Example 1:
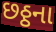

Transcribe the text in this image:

છઠ્ઠના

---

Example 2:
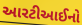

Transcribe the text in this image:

આરટીઆઈનો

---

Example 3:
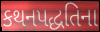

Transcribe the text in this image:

કથનપદ્ધતિના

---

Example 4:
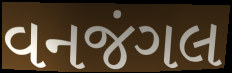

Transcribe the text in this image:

વનજંગલ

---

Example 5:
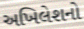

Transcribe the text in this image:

અખિલેશનો